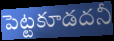
పెట్టకూడదనీ